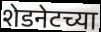
शेडनेटच्या